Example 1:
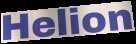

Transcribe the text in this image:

Helion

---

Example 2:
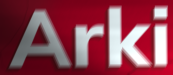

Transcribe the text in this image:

Arki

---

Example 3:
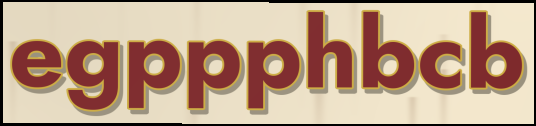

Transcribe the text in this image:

egppphbcb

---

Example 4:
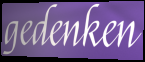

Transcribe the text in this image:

gedenken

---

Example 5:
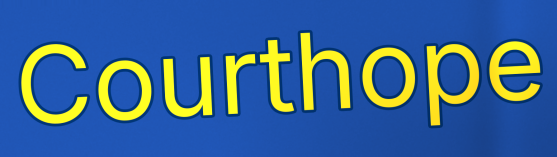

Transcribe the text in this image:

Courthope